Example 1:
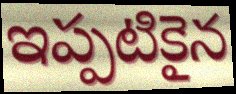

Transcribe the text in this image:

ఇప్పటికైన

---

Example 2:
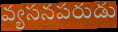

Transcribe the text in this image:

వ్యసనపరుడు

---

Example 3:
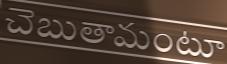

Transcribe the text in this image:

చెబుతామంటూ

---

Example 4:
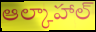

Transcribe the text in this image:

ఆల్కాహాల్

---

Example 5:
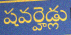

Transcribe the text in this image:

షవర్హెడ్లు